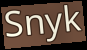
Snyk